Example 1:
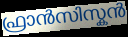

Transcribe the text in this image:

ഫ്രാൻസിസ്കൻ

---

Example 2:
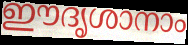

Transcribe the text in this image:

ഈദൃശാനാം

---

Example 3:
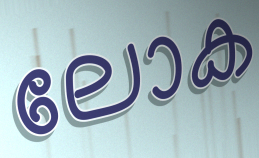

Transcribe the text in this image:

ലോക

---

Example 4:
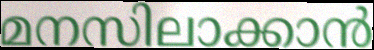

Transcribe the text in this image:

മനസിലാക്കാൻ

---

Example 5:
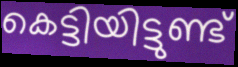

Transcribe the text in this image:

കെട്ടിയിട്ടുണ്ട്